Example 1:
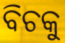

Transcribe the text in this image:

ବିଚକୁ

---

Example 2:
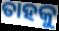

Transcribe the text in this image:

ତାହକୁ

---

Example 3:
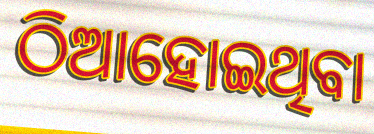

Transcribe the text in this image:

ଠିଆହୋଇଥିବା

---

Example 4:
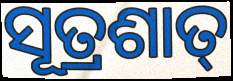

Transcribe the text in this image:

ସୂତ୍ରଶାତ୍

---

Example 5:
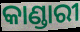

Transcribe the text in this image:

କାଣ୍ଡାରୀ